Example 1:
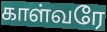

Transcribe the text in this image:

காள்வரே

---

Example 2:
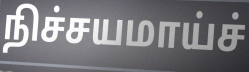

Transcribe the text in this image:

நிச்சயமாய்ச்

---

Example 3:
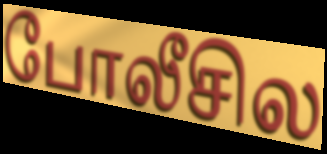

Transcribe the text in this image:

போலீசில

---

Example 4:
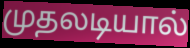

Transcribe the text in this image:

முதலடியால்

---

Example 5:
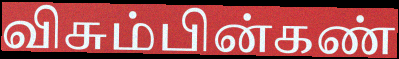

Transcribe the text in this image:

விசும்பின்கண்